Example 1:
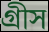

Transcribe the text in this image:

গ্রীস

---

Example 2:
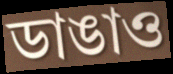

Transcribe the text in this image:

ডাঙাও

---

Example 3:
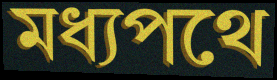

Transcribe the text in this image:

মধ্যপথে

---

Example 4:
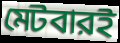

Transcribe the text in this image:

মেটবারই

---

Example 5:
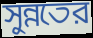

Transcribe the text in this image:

সুন্নতের